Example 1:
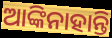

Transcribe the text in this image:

ଆଙ୍କିନାହାନ୍ତି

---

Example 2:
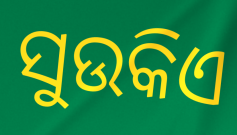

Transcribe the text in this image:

ସୁଉକିଏ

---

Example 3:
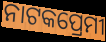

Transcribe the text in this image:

ନାଟକପ୍ରେମୀ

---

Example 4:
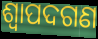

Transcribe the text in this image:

ଶ୍ୱାପଦଗଣ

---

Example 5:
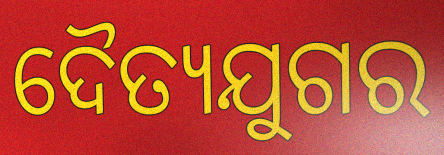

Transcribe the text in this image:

ଦୈତ୍ୟଯୁଗର